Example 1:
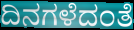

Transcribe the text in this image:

ದಿನಗಳೆದಂತೆ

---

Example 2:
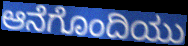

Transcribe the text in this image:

ಆನೆಗೊಂದಿಯು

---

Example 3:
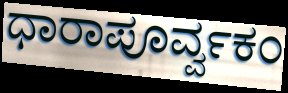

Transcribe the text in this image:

ಧಾರಾಪೂರ್ವ್ವಕಂ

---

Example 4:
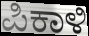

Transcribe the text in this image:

ಪಿಕಾಳಿ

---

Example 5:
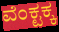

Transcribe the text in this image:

ವೆಂಕ್ಟಕ್ಕ